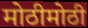
मोठीमोठी